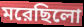
মরেছিলো